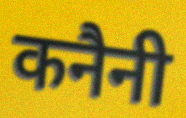
कनैनी